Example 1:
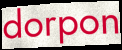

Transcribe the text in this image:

dorpon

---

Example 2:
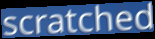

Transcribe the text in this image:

scratched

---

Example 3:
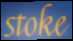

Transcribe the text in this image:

stoke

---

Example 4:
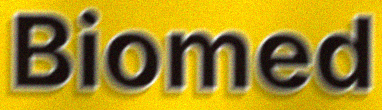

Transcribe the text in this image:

Biomed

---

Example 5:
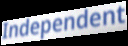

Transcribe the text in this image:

Independent